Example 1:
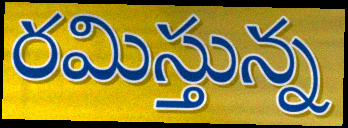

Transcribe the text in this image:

రమిస్తున్న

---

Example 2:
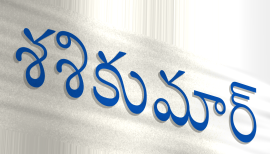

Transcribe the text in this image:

శశికుమార్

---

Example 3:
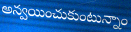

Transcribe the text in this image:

అన్వయించుకుంటున్నాం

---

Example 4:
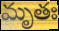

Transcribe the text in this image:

మృతః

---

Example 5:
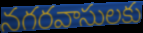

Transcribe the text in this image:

నగరవాసులకు